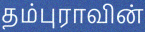
தம்புராவின்